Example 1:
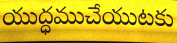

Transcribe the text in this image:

యుద్ధముచేయుటకు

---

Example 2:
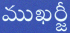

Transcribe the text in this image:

ముఖర్జీ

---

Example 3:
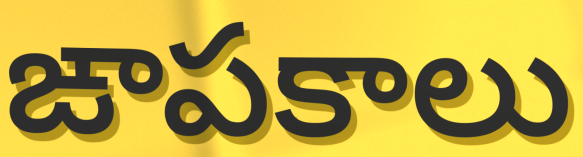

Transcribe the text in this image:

ఙాపకాలు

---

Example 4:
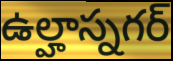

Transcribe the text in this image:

ఉల్హాస్నగర్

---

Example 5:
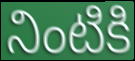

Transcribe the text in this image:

నింటికి